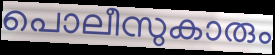
പൊലീസുകാരും